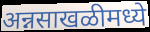
अन्नसाखळीमध्ये